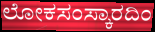
ಲೋಕಸಂಸ್ಕಾರದಿಂ